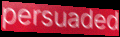
persuaded